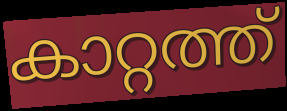
കാറ്റത്ത്